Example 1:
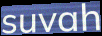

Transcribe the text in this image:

suvah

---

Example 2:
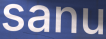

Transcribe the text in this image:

sanu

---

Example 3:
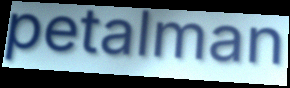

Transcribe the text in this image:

petalman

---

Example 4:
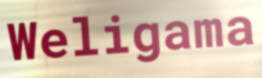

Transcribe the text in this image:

Weligama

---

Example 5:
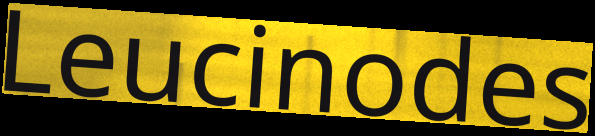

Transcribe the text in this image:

Leucinodes